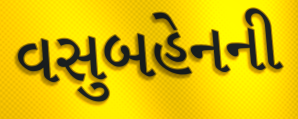
વસુબહેનની